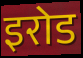
इरोड